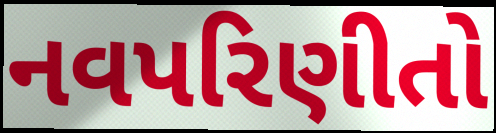
નવપરિણીતો